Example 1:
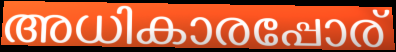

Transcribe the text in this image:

അധികാരപ്പോര്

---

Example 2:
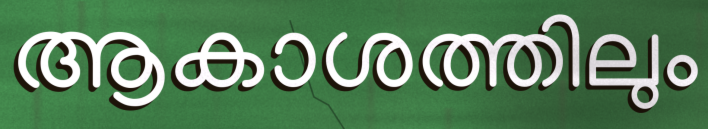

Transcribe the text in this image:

ആകാശത്തിലും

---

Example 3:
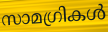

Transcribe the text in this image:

സാമഗ്രികൾ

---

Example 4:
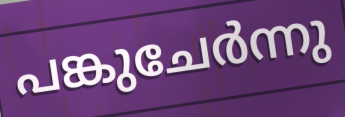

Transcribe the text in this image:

പങ്കുചേർന്നു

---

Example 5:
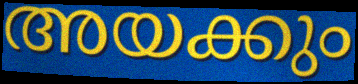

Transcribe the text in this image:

അയക്കും